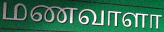
மணவாளா